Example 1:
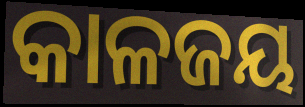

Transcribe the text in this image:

କାଳଜୟ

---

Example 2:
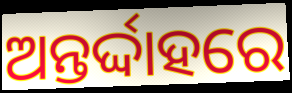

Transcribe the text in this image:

ଅନ୍ତର୍ଦ୍ଦାହରେ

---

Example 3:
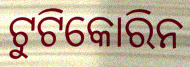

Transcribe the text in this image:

ଟୁଟିକୋରିନ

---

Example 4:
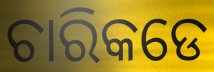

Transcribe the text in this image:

ଚାରିକଡେ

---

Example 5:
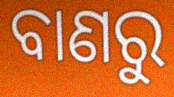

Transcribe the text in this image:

ବାଣରୁ